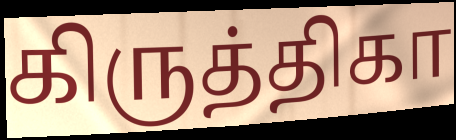
கிருத்திகா